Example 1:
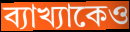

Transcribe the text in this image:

ব্যাখ্যাকেও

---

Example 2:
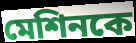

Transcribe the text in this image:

মেশিনকে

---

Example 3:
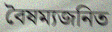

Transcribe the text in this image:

বৈষম্যজনিত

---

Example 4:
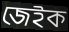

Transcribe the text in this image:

জেইক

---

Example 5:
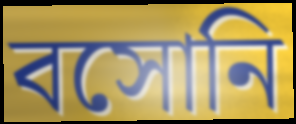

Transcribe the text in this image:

বসোনি